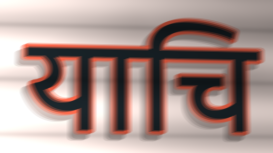
याचि